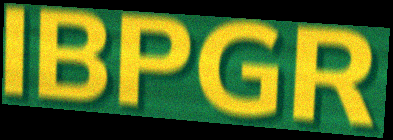
IBPGR